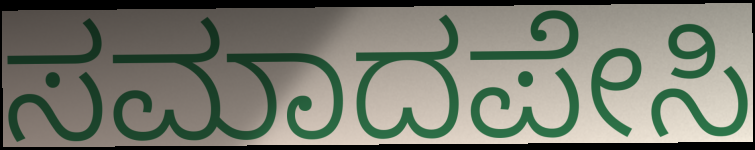
ಸಮಾದಪೇಸಿ